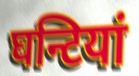
घन्टियां